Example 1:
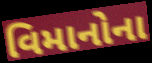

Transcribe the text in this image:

વિમાનોના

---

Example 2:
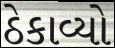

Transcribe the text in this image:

ઠેકાવ્યો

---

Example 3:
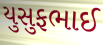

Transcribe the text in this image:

યુસુફભાઈ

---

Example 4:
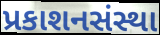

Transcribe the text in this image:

પ્રકાશનસંસ્થા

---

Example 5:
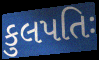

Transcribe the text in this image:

કુલપતિઃ